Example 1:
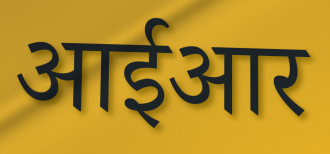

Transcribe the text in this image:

आईआर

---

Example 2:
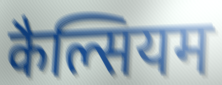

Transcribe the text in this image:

कैल्सियम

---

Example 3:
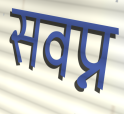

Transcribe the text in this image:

सवप्न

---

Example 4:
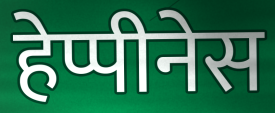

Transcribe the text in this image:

हेप्पीनेस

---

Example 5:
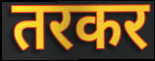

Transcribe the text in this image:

तरकर